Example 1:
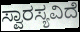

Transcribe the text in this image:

ಸ್ವಾರಸ್ಯವಿದೆ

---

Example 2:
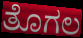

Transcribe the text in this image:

ತೊಗಲ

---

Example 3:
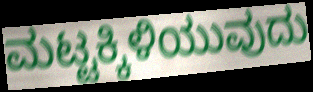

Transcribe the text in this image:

ಮಟ್ಟಕ್ಕಿಳಿಯುವುದು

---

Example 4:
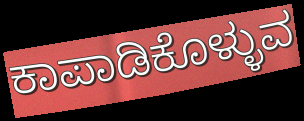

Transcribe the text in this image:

ಕಾಪಾಡಿಕೊಳ್ಳುವ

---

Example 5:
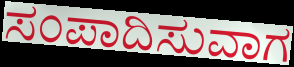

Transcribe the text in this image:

ಸಂಪಾದಿಸುವಾಗ